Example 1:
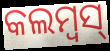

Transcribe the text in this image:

କଲମ୍ବସ୍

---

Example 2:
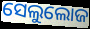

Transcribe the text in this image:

ସେଲୁଲୋଜ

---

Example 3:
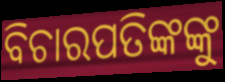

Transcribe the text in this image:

ବିଚାରପତିଙ୍କଙ୍କୁ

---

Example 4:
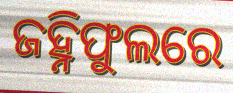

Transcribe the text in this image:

ଜହ୍ନିଫୁଲରେ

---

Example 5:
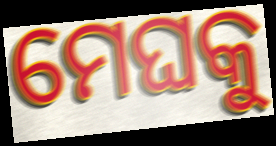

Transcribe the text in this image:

ମେଘକୁ